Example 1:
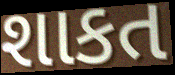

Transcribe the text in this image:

શાકત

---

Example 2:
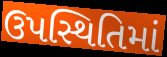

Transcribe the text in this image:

ઉપસ્થિતિમાં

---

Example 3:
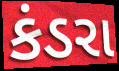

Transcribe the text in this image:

કંડરા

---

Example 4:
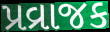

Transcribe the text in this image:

પ્રવ્રાજક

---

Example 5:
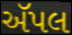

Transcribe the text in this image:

ઍપલ